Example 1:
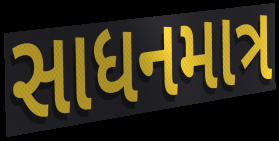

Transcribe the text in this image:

સાધનમાત્ર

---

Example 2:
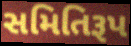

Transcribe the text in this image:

સમિતિરૂપ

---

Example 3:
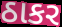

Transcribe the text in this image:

ઠાકર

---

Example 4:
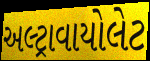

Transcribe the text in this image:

અલ્ટ્રાવાયોલેટ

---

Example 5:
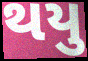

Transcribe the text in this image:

થયુ